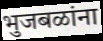
भुजबळांना